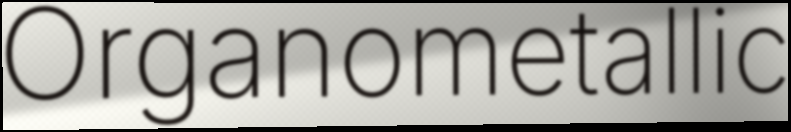
Organometallic